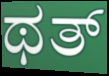
ಥತ್